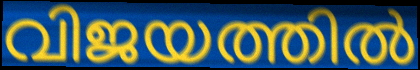
വിജയത്തിൽ